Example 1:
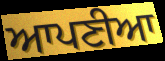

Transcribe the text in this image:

ਆਪਣੀਆ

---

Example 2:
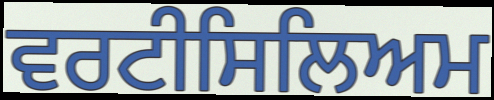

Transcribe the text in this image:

ਵਰਟੀਸਿਲਿਅਮ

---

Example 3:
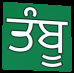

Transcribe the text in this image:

ਤੰਬੂ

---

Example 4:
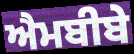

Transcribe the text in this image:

ਐਮਬੀਬੇ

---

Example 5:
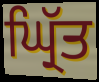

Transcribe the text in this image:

ਘ੍ਰਿੱਤ